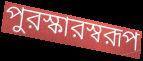
পুরস্কারস্বরূপ